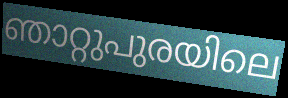
ഞാറ്റുപുരയിലെ